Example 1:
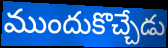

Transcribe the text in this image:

ముందుకొచ్చేడు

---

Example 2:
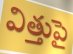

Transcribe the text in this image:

విత్తుపై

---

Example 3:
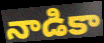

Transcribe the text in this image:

నాడికా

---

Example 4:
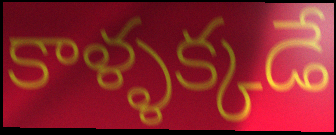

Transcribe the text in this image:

కాళ్ళక్కడే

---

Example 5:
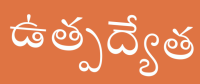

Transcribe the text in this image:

ఉత్పద్యేత